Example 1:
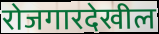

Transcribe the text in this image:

रोजगारदेखील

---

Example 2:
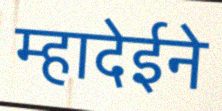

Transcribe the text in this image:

म्हादेईने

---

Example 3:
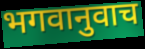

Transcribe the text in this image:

भगवानुवाच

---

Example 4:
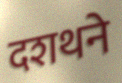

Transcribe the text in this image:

दशथने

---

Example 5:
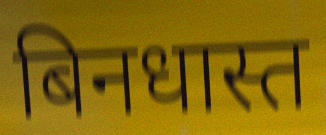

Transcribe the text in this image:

बिनधास्त